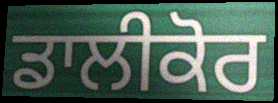
ਡਾਲੀਕੋਰ